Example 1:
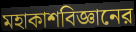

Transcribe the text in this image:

মহাকাশবিজ্ঞানের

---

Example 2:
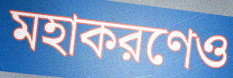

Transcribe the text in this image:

মহাকরণেও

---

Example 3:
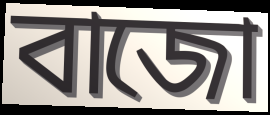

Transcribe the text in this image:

বাজো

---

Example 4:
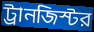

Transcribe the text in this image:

ট্রানজিস্টর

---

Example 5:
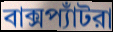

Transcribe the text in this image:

বাক্সপ্যাঁটরা